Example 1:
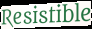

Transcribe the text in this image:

Resistible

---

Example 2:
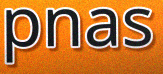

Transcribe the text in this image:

pnas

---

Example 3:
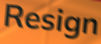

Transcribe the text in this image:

Resign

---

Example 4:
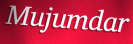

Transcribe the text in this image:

Mujumdar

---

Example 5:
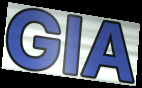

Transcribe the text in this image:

GIA